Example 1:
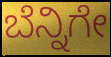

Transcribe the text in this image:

ಬೆನ್ನಿಗೇ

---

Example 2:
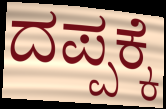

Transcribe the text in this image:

ದಪ್ಪಕ್ಕೆ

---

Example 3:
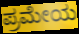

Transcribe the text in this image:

ಪ್ರಮೇಯ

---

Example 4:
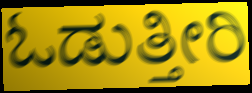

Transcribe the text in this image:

ಓಡುತ್ತೀರಿ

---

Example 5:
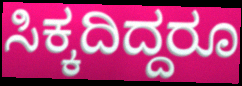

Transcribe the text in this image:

ಸಿಕ್ಕದಿದ್ದರೂ